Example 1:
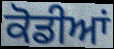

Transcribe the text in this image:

ਕੋਡੀਆਂ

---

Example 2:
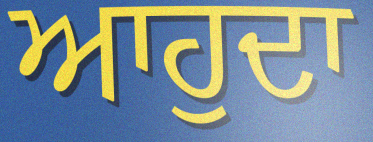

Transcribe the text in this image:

ਆਹੁਦਾ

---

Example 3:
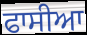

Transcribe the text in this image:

ਫਾਸੀਆ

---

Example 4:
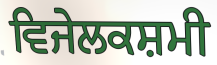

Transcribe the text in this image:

ਵਿਜੇਲਕਸ਼ਮੀ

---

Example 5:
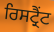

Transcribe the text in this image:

ਰਿਸਟ੍ਰੈਂਟ